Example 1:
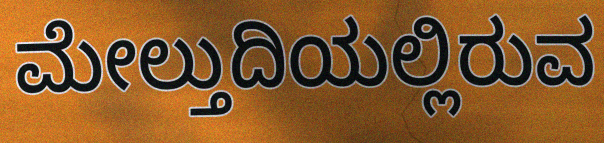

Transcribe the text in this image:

ಮೇಲ್ತುದಿಯಲ್ಲಿರುವ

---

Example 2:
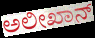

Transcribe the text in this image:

ಅಲೀಖಾನ್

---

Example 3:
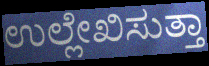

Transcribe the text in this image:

ಉಲ್ಲೇಖಿಸುತ್ತಾ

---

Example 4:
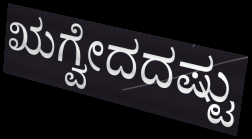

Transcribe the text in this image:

ಋಗ್ವೇದದಷ್ಟು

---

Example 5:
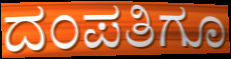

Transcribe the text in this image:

ದಂಪತಿಗೂ